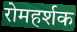
रोमहर्शक